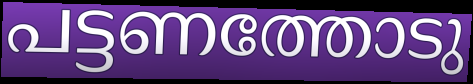
പട്ടണത്തോടു